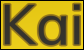
Kai